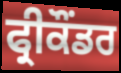
ਫ੍ਰੀਕੌਂਡਰ